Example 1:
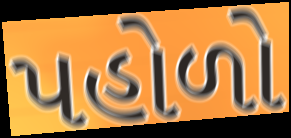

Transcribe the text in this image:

પહોળો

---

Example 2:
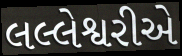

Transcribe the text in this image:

લલ્લેશ્વરીએ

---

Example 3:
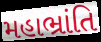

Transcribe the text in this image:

મહાભ્રાંતિ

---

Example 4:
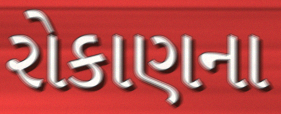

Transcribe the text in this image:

રોકાણના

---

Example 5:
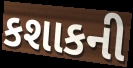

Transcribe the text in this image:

કશાકની